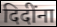
दिदींना